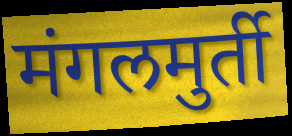
मंगलमुर्ती